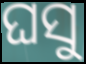
ଘସୁ